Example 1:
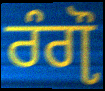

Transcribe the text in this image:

ਰੰਗੵੌ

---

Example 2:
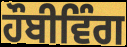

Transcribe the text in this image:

ਹੌਬੀਵਿੰਗ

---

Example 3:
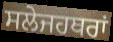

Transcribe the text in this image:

ਸਲੇਜਹਥਰਾਂ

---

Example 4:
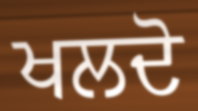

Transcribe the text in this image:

ਖਲਦੋ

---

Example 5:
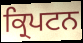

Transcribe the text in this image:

ਕ੍ਰਿਪਟਨ